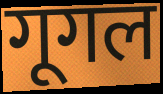
गूगल